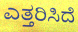
ಎತ್ತರಿಸಿದೆ